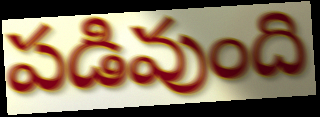
పడివుంది